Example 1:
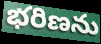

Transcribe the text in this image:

భరిణను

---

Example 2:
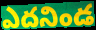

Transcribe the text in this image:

ఎదనిండ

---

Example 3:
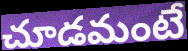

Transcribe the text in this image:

చూడమంటే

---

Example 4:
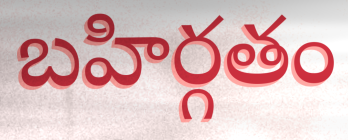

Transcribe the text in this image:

బహిర్గతం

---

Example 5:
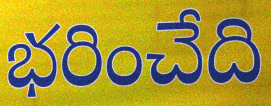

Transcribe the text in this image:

భరించేది